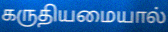
கருதியமையால்